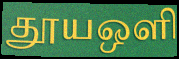
தூயஒளி